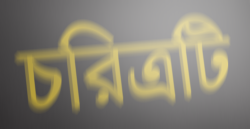
চরিত্রটি